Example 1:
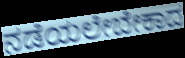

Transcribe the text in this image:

ನಡೆಯಲೇಬೇಕಾದ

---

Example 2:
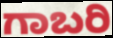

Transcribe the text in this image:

ಗಾಬರಿ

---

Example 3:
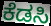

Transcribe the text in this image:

ಕೆಡಸಿ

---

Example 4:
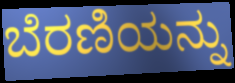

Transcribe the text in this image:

ಬೆರಣಿಯನ್ನು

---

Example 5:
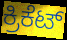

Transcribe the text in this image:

ಕ್ರಿಕೆಟ್